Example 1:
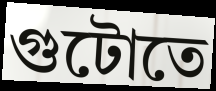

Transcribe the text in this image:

গুটোতে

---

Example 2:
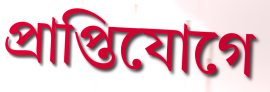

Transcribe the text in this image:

প্রাপ্তিযোগে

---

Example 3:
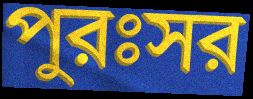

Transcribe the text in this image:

পুরঃসর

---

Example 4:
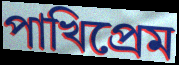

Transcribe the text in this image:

পাখিপ্রেম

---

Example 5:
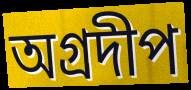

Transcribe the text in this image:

অগ্রদীপ